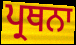
ਪ੍ਰਥਨਾ